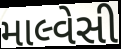
માલ્વેસી